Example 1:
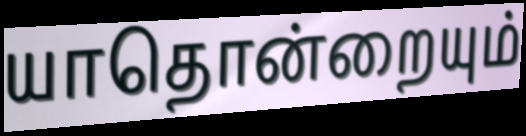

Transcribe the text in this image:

யாதொன்றையும்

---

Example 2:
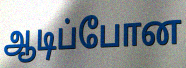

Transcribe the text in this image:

ஆடிப்போன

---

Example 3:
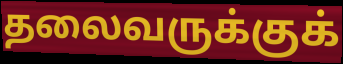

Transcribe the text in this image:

தலைவருக்குக்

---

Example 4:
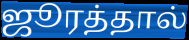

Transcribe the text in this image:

ஜூரத்தால்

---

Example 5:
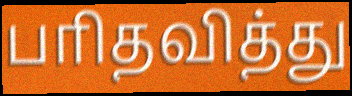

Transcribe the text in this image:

பரிதவித்து